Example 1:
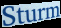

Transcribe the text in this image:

Sturm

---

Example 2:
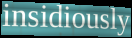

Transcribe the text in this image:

insidiously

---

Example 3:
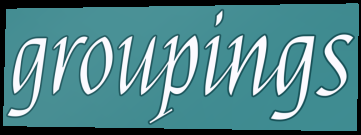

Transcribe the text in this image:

groupings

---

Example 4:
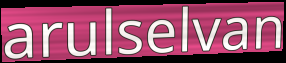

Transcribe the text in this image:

arulselvan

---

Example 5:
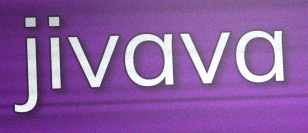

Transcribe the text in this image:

jivava